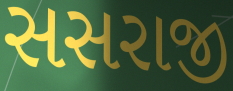
સસરાજી